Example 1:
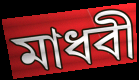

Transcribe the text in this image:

মাধবী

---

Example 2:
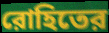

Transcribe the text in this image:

রোহিতের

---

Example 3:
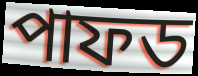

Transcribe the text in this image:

পাফড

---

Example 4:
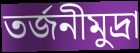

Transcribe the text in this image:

তর্জনীমুদ্রা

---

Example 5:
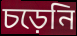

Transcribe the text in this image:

চড়েনি